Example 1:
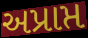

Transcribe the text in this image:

અપ્રાપ્ત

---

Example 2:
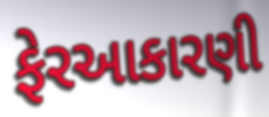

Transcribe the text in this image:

ફેરઆકારણી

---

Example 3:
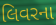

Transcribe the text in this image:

લિવરના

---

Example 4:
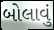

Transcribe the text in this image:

બોલાવું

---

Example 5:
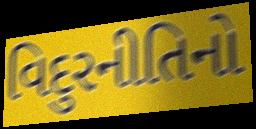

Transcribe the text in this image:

વિદુરનીતિનો